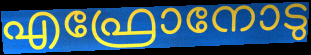
എഫ്രോനോടു